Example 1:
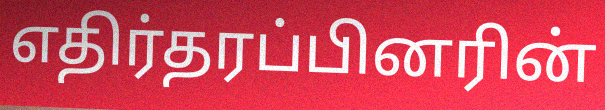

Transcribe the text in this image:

எதிர்தரப்பினரின்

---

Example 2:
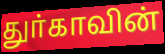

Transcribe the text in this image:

துர்காவின்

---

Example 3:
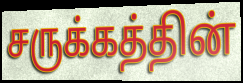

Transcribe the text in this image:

சருக்கத்தின்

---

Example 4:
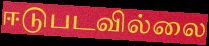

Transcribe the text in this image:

ஈடுபடவில்லை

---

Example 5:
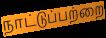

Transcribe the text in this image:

நாட்டுப்பற்றை